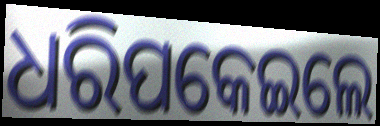
ଧରିପକେଇଲେ